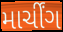
માર્ચીંગ